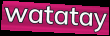
watatay